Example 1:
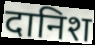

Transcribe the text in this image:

दानिश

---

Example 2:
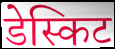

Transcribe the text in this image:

डेस्किट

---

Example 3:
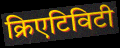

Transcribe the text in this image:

क्रिएटिविटी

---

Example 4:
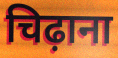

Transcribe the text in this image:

चिढ़ाना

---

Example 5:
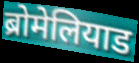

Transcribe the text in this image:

ब्रोमेलियाड